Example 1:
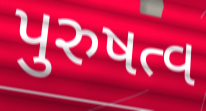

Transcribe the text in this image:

પુરુષત્વ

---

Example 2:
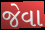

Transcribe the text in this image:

જેવા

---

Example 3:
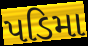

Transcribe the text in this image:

પડિમા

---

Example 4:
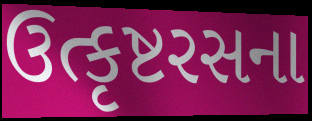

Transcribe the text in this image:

ઉત્કૃષ્ટરસના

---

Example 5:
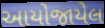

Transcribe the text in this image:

આયોજાયેલ